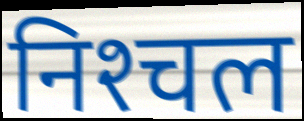
निश्चल